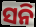
ସନି